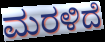
ಮರಳಿದೆ